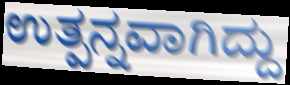
ಉತ್ಪನ್ನವಾಗಿದ್ದು